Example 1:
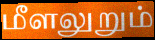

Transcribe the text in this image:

மீளலுறும்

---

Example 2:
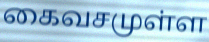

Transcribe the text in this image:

கைவசமுள்ள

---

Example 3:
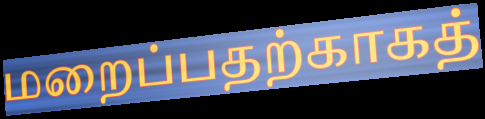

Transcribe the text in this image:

மறைப்பதற்காகத்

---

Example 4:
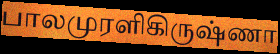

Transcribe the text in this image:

பாலமுரளிகிருஷ்ணா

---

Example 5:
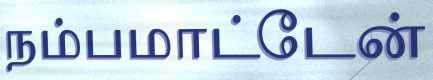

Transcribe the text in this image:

நம்பமாட்டேன்